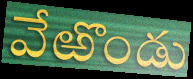
వేఱొండు